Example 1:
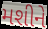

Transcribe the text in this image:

મશીને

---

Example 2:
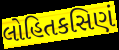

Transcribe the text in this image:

લોહિતકસિણં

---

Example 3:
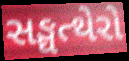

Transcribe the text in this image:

સઙ્ઘત્થેરો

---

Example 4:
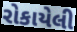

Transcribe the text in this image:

રોકાયેલી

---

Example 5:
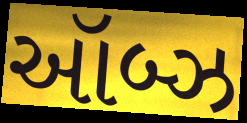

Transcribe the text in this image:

ઑબ્ઝ